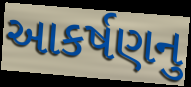
આકર્ષણનુ